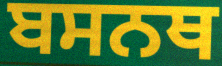
ਬਸਨਥ